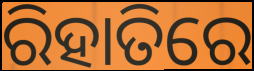
ରିହାତିରେ